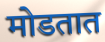
मोडतात